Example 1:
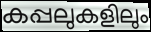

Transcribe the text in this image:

കപ്പലുകളിലും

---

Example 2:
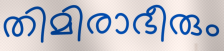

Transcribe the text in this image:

തിമിരാഭീരും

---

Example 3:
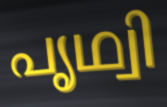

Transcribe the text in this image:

പൃഥ്വി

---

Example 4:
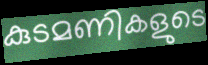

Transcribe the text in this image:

കുടമണികളുടെ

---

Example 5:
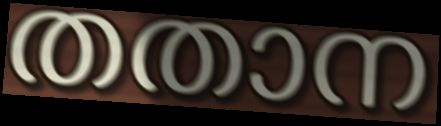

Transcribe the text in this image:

തതാന